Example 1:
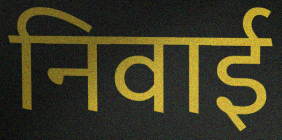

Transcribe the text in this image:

निवाई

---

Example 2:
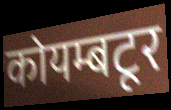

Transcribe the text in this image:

कोयम्‍बटूर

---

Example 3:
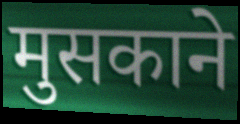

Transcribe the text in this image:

मुसकाने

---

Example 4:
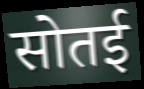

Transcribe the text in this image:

सोतई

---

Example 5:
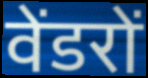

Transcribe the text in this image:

वेंडरों